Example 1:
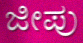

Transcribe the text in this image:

ಜೀಪು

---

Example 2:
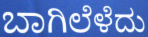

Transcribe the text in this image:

ಬಾಗಿಲೆಳೆದು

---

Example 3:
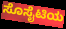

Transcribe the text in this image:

ಸೊಸೈಟಿಯ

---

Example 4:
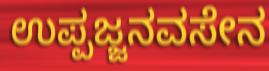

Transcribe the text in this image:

ಉಪ್ಪಜ್ಜನವಸೇನ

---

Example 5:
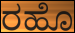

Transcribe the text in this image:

ರಹೊ